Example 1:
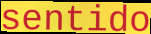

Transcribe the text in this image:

sentido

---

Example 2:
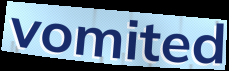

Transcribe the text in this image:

vomited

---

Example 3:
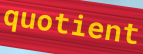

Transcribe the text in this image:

quotient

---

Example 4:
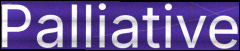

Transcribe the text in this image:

Palliative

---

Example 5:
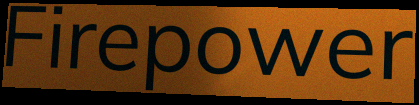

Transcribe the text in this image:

Firepower